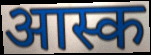
आस्क